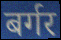
बर्गर